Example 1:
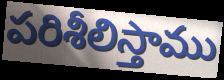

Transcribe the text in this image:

పరిశీలిస్తాము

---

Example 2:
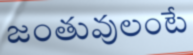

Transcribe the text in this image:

జంతువులంటే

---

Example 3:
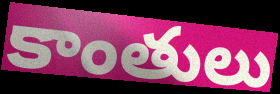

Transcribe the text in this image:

కాంతులు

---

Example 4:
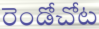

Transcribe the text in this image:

రెండోచోట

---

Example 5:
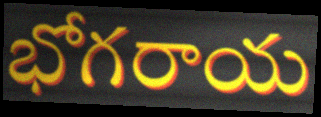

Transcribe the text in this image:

భోగరాయ